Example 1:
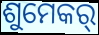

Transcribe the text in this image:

ଶୁମେକର୍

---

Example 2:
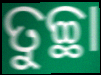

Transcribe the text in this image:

ତୁଚ୍ଛା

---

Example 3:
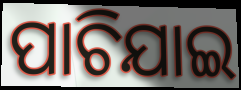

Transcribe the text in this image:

ପାଚିଯାଇ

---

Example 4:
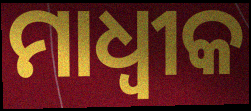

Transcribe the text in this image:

ମାଧ୍ୱୀକ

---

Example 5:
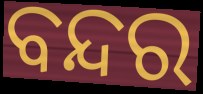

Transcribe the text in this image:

ବନ୍ଦର